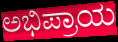
ಅಭಿಪ್ರಾಯ